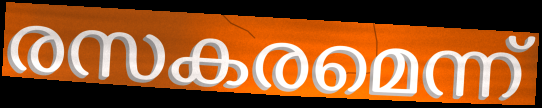
രസകരമെന്ന്